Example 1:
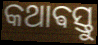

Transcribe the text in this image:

କଥାଵସ୍ତୁ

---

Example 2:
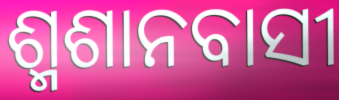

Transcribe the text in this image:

ଶ୍ମଶାନବାସୀ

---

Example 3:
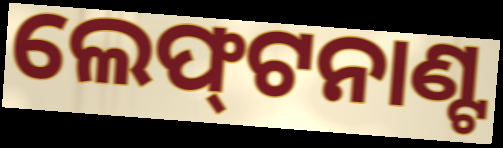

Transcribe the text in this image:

ଲେଫ୍‌ଟନାଣ୍ଟ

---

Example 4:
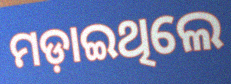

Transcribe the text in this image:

ମଡ଼ାଇଥିଲେ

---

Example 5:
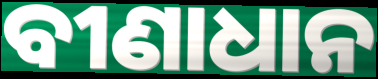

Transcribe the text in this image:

ବୀଣାଧାନ